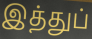
இத்துப்